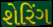
શેરિંગ